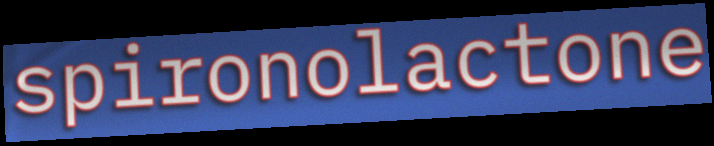
spironolactone